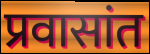
प्रवासांत